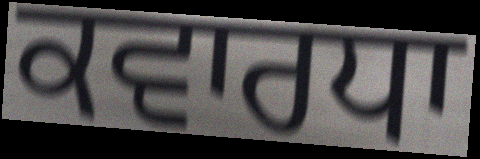
ਕਵਾਰਧਾ